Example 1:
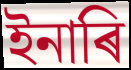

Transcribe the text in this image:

ইনাৰি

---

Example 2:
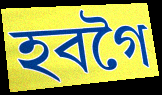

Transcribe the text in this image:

হবগৈ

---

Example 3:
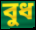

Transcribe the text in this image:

বুধ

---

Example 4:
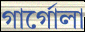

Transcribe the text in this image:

গাৰ্গোলা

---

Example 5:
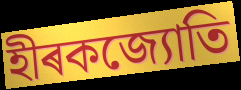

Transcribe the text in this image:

হীৰকজ্যোতি